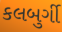
કલબુર્ગી